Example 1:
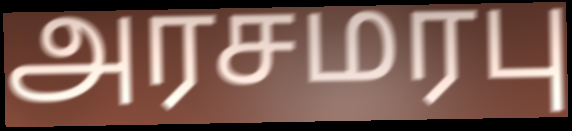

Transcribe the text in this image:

அரசமரபு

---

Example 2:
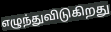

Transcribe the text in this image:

எழுந்துவிடுகிறது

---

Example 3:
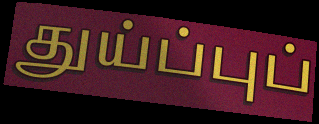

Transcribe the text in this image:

துய்ப்புப்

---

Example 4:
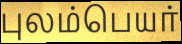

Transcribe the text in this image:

புலம்பெயர்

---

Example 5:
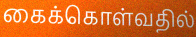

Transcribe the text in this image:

கைக்கொள்வதில்